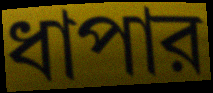
ধাপার